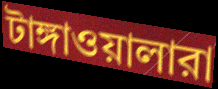
টাঙ্গাওয়ালারা